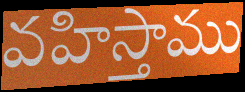
వహిస్తాము